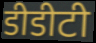
डीडीटी